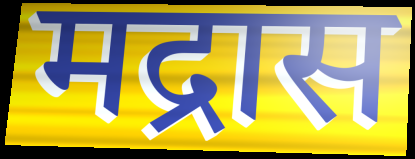
मद्रास